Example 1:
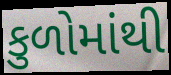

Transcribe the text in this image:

કુળોમાંથી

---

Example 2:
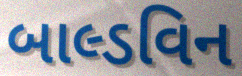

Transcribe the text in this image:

બાલ્ડવિન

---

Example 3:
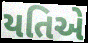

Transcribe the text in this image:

યતિએ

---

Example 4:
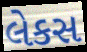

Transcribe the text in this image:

લેકસ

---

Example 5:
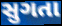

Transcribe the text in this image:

સુગતા